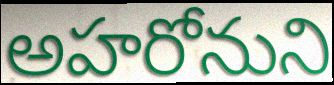
అహరోనుని